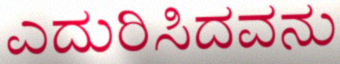
ಎದುರಿಸಿದವನು